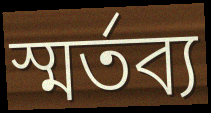
স্মর্তব্য